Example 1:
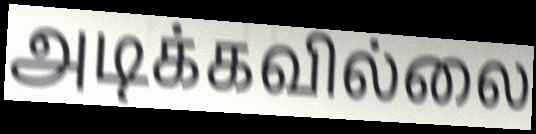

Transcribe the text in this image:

அடிக்கவில்லை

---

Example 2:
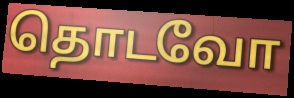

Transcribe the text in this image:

தொடவோ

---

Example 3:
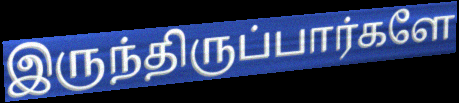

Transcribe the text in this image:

இருந்திருப்பார்களே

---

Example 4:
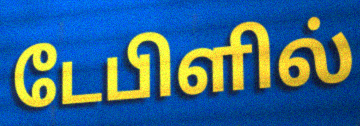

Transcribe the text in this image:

டேபிளில்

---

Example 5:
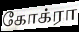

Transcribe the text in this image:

கோக்ரா